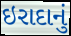
ઇરાદાનું